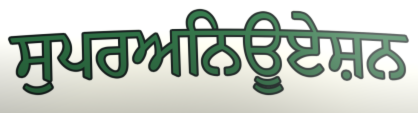
ਸੁਪਰਅਨਿਊਏਸ਼ਨ